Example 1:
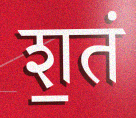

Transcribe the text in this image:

श॒तं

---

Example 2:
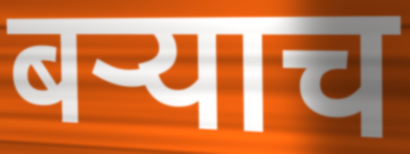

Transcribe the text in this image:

बऱ्याच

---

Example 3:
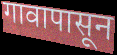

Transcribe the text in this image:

गावापासून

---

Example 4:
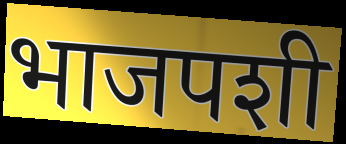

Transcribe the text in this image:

भाजपशी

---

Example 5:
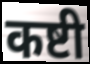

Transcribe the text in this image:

कष्टी